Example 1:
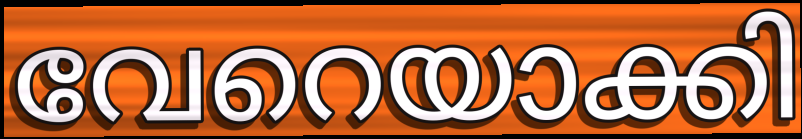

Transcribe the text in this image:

വേറെയാക്കി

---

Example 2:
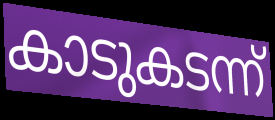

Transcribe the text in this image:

കാടുകടന്ന്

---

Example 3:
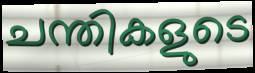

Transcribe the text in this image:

ചന്തികളുടെ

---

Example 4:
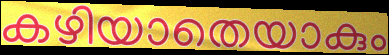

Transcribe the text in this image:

കഴിയാതെയാകും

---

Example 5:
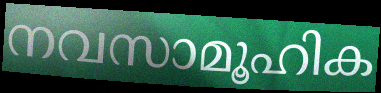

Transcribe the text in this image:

നവസാമൂഹിക